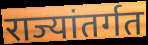
राज्यांतर्गत